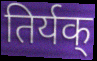
तिर्यक्